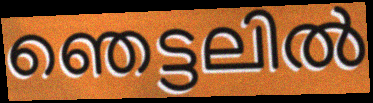
ഞെട്ടലിൽ